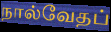
நால்வேதப்